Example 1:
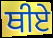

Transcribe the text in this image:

ਥੀਏ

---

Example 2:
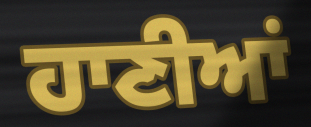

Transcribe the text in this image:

ਹਾਣੀਆਂ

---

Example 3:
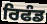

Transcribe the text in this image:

ਰਿਫੰਡ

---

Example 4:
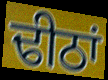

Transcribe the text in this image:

ਢੀਠਾਂ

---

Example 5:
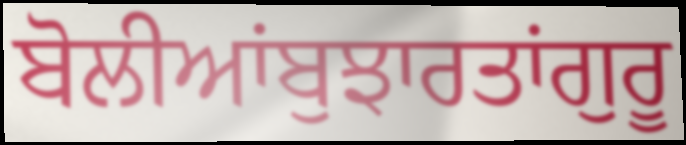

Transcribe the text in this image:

ਬੋਲੀਆਂਬੁਝਾਰਤਾਂਗੁਰੂ